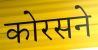
कोरसने